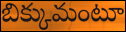
బిక్కుమంటూ